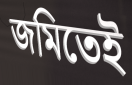
জমিতেই